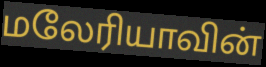
மலேரியாவின்